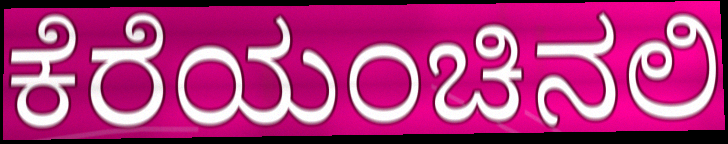
ಕೆರೆಯಂಚಿನಲಿ